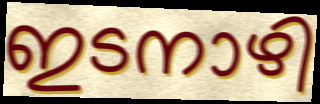
ഇടനാഴി